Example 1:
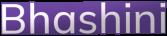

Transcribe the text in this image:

Bhashini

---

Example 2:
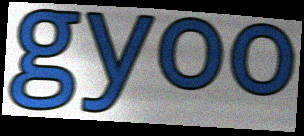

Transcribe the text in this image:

gyoo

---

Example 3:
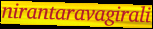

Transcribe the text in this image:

nirantaravagirali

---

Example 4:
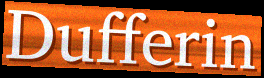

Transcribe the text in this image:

Dufferin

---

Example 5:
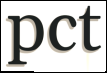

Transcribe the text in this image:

pct